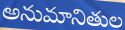
అనుమానితుల